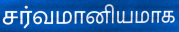
சர்வமானியமாக